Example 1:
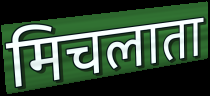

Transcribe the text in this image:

मिचलाता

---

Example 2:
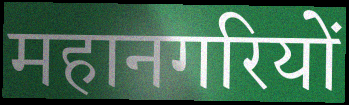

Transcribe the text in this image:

महानगरियों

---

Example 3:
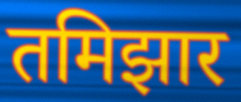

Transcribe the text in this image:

तमिझार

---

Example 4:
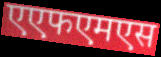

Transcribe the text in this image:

एएफएमएस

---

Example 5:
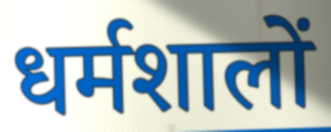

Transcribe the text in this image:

धर्मशालों